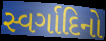
સ્વર્ગાદિનો